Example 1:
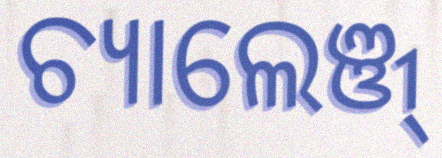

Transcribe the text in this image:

ଚ୍ୟାଲେଞ୍ଜ୍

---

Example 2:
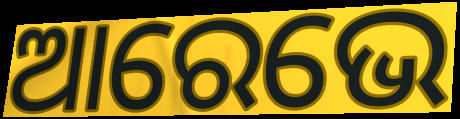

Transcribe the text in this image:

ଆରେଭେ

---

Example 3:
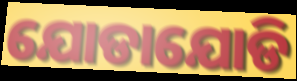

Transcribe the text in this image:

ଯୋଡାଯୋଡି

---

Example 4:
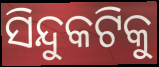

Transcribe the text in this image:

ସିନ୍ଦୁକଟିକୁ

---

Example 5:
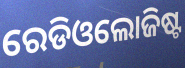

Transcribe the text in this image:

ରେଡିଓଲୋଜିଷ୍ଟ